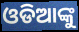
ଓଡିଆଙ୍କୁ